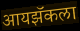
आयझॅकला